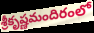
శ్రీకృష్ణమందిరంలో